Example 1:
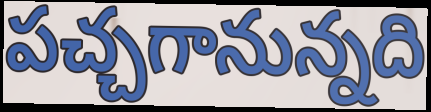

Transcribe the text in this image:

పచ్చగానున్నది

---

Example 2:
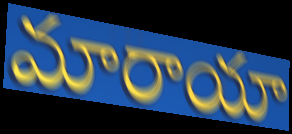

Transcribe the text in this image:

మారాయా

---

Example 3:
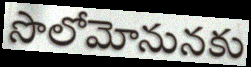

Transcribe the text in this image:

సొలోమోనునకు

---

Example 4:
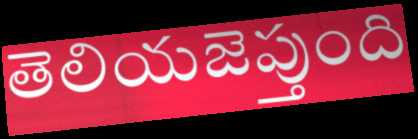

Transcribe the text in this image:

తెలియజెప్తుంది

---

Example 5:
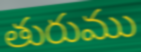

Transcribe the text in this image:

తురుము